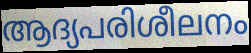
ആദ്യപരിശീലനം